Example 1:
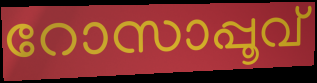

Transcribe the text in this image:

റോസാപ്പൂവ്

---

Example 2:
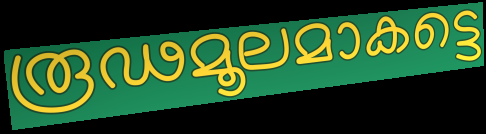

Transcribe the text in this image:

രൂഢമൂലമാകട്ടെ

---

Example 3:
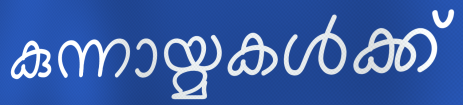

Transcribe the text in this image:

കുന്നായ്മകൾക്ക്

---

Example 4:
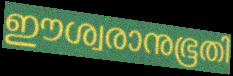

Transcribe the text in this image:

ഈശ്വരാനുഭൂതി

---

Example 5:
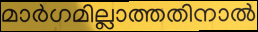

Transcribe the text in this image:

മാർഗമില്ലാത്തതിനാൽ